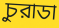
চুরাডা